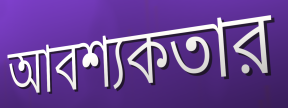
আবশ্যকতার